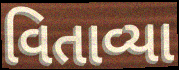
વિતાવ્યા